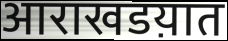
आराखडय़ात